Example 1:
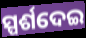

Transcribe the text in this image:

ସ୍ପର୍ଶଦେଇ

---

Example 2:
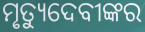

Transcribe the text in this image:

ମୃତ୍ୟୁଦେବୀଙ୍କର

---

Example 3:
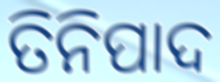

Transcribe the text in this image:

ତିନିପାଦ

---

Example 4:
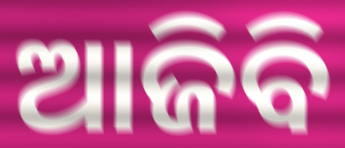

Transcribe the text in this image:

ଆଜିବି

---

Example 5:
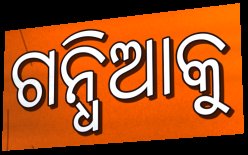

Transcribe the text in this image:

ଗନ୍ଧିଆକୁ